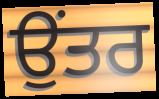
ਉਂਤਰ